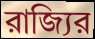
রাজ্যির